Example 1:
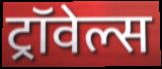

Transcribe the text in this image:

ट्रॉवेल्स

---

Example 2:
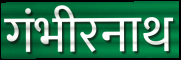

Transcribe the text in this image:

गंभीरनाथ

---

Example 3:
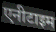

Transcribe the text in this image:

एनीटाइम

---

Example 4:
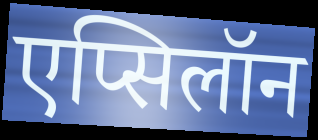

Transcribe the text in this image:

एप्सिलॉन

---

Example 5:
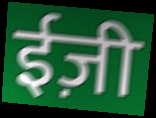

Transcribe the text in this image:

ईज़ी